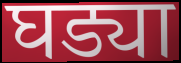
घड्या